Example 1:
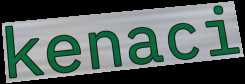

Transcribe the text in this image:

kenaci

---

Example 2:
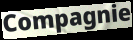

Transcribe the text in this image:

Compagnie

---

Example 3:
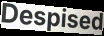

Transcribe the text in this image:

Despised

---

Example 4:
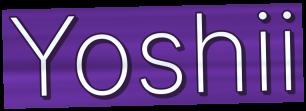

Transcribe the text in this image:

Yoshii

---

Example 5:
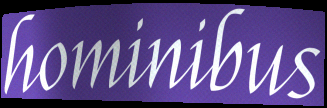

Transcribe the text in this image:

hominibus